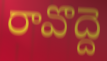
రావొద్దె